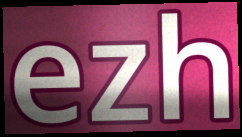
ezh